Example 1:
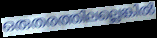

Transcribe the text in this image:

ഒരുതരത്തിലല്ലെങ്കിൽ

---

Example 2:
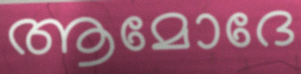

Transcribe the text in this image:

ആമോദേ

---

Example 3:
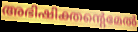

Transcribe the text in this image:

അഭിഷിക്തന്റെമേൽ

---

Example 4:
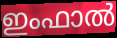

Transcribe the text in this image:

ഇംഫാൽ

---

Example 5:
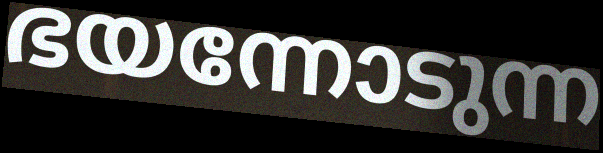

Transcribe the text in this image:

ഭയന്നോടുന്ന